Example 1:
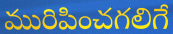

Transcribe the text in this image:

మురిపించగలిగే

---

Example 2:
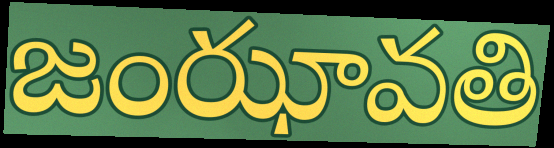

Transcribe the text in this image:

జంఝావతి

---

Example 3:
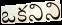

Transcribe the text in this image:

ఒకనిని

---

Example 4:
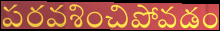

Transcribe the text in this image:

పరవశించిపోవడం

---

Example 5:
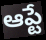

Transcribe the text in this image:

ఆప్టే